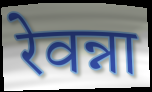
रेवन्ना